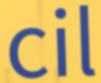
cil